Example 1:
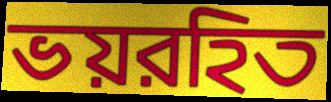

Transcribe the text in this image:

ভয়রহিত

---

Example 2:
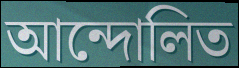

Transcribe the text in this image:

আন্দোলিত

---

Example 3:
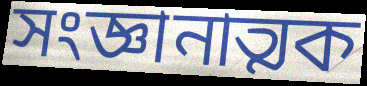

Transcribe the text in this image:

সংজ্ঞানাত্মক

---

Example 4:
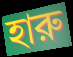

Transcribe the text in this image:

হারু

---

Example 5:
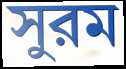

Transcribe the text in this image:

সুরম